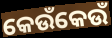
କେଉଁକେଉଁ